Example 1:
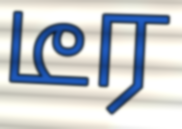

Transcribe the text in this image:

டீர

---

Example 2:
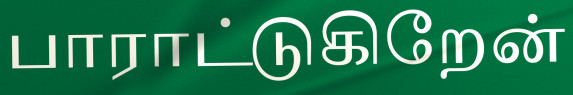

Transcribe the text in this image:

பாராட்டுகிறேன்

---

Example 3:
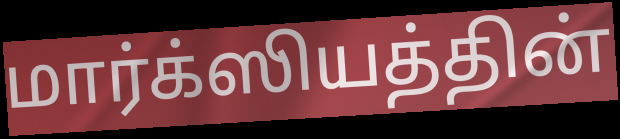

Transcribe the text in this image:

மார்க்ஸியத்தின்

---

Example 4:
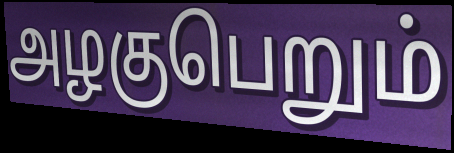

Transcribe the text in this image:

அழகுபெறும்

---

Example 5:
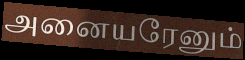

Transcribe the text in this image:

அனையரேனும்